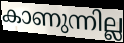
കാണുന്നില്ല